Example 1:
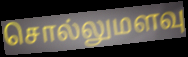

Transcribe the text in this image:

சொல்லுமளவு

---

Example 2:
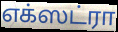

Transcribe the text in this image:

எக்ஸட்ரா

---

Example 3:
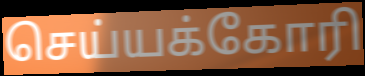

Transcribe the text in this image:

செய்யக்கோரி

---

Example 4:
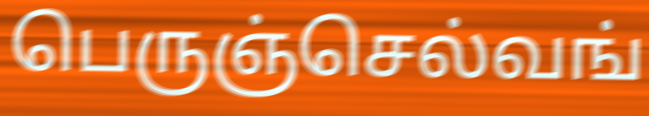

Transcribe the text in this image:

பெருஞ்செல்வங்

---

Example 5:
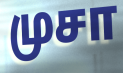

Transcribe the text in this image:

முசா